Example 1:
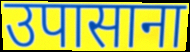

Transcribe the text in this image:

उपासाना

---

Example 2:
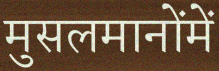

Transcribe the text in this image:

मुसलमानोंमें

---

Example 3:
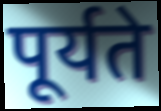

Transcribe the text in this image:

पूर्यते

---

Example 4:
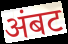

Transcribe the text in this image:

अंबट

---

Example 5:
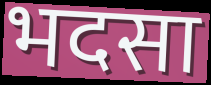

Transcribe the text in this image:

भदसा